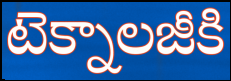
టెక్నాలజీకి